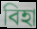
বিহা